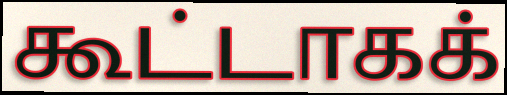
கூட்டாகக்